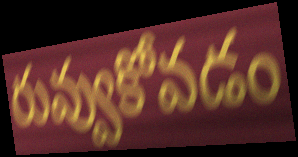
రువ్వుకోవడం